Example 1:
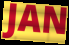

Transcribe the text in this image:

JAN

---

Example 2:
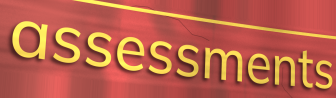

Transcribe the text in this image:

assessments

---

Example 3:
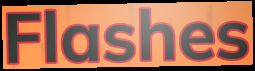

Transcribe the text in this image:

Flashes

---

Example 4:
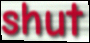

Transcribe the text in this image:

shut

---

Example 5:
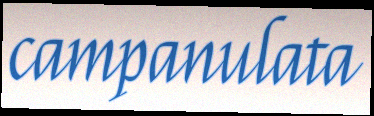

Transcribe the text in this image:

campanulata